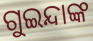
ଗୁଇନ୍ଦାଙ୍କ